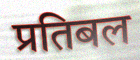
प्रतिबल